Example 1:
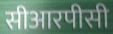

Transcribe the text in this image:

सीआरपीसी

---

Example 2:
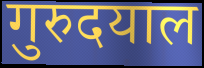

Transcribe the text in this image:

गुरुदयाल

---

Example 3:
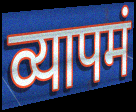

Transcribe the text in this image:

व्‍यापमं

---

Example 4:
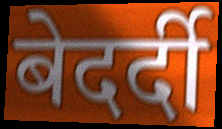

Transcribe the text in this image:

बेदर्दी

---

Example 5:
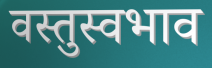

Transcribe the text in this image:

वस्तुस्वभाव